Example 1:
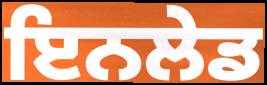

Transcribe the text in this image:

ਇਨਲੇਡ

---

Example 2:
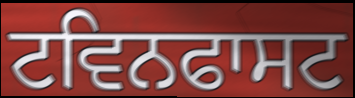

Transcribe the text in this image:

ਟਵਿਨਫਾਸਟ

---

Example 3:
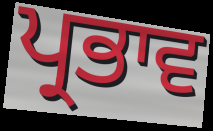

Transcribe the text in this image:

ਪ੍ਰਭਾਵ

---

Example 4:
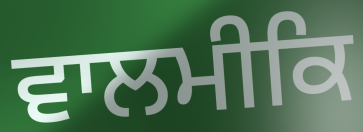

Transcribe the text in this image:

ਵਾਲਮੀਕਿ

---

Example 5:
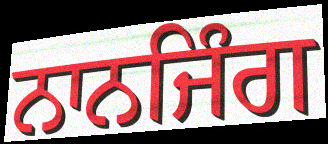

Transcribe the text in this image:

ਨਾਨਜਿੰਗ